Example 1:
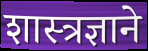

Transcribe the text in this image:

शास्त्रज्ञाने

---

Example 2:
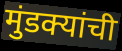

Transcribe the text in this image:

मुंडक्यांची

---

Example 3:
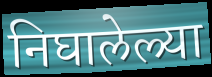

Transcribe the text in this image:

निघालेल्या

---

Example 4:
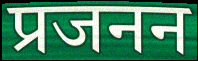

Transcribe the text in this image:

प्रजनन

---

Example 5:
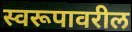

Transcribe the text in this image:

स्वरूपावरील